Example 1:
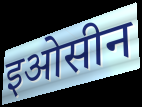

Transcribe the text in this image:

इओसीन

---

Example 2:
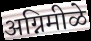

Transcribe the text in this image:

अग्निमीळे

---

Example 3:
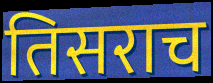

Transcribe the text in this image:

तिसराच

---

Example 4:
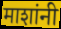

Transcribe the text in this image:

माशांनी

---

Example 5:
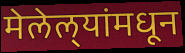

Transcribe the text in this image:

मेलेल्यांमधून